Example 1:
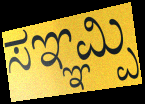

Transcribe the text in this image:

ಸಞ್ಞಮ್ಪಿ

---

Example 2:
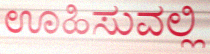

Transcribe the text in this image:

ಊಹಿಸುವಲ್ಲಿ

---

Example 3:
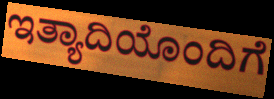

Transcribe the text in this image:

ಇತ್ಯಾದಿಯೊಂದಿಗೆ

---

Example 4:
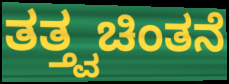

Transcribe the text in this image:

ತತ್ತ್ವಚಿಂತನೆ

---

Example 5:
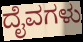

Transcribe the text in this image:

ದೈವಗಳು